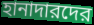
হানাদারদের